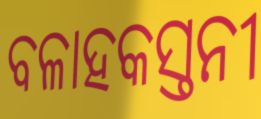
ବଳାହକସ୍ତନୀ